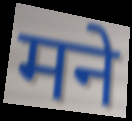
मने